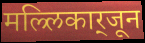
मल्लिकार्जून